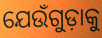
ଯେଉଁଗୁଡ଼ାକୁ